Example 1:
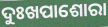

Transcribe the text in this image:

ଦୁଃଖପାଶୋରା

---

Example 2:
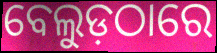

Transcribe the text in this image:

ବେଲୁଡ଼ଠାରେ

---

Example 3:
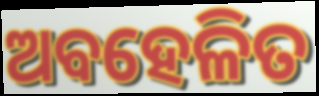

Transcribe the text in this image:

ଅବହେଳିତ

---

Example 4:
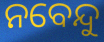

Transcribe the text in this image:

ନବେନ୍ଦୁ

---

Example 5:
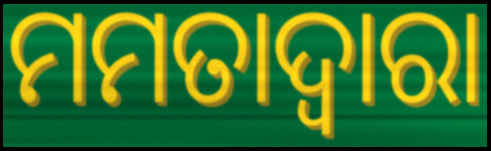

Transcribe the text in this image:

ମମତାଦ୍ୱାରା